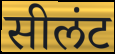
सीलंट